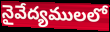
నైవేద్యములలో